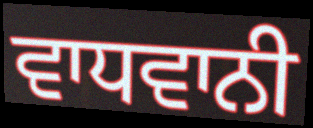
ਵਾਧਵਾਨੀ